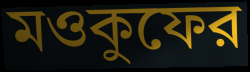
মওকুফের